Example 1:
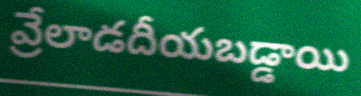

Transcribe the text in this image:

వ్రేలాడదీయబడ్డాయి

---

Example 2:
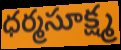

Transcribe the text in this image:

ధర్మసూక్ష్మ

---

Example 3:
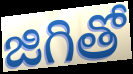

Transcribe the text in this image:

జిగితో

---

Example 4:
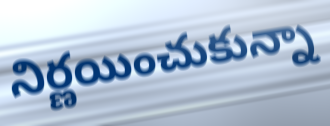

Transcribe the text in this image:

నిర్ణయించుకున్నా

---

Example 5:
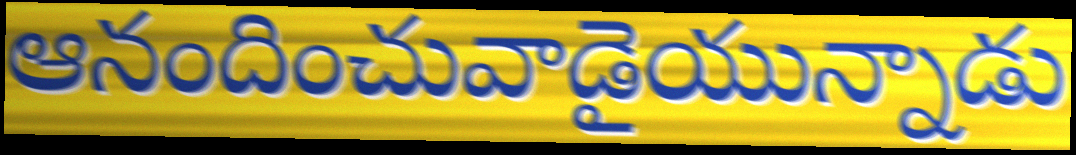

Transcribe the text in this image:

ఆనందించువాడైయున్నాడు